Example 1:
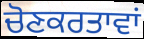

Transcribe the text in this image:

ਚੋਣਕਰਤਾਵਾਂ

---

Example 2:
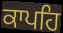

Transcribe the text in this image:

ਕਾਪਹਿ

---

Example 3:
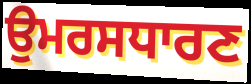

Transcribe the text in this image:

ਉਮਰਸਧਾਰਣ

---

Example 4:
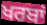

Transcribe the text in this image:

ਖਰਬਾਂ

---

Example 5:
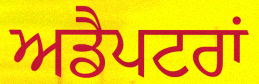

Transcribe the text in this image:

ਅਡੈਪਟਰਾਂ